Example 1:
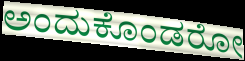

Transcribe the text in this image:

ಅಂದುಕೊಂಡರೋ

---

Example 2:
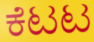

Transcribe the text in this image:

ಕೆಟಟ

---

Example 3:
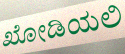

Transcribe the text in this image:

ಖೋಡಿಯಲಿ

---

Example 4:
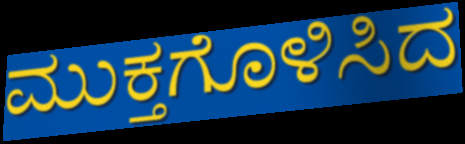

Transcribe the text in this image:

ಮುಕ್ತಗೊಳಿಸಿದ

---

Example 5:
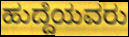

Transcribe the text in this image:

ಹುದ್ದೆಯವರು